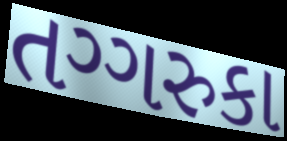
તગ્ગરુકા